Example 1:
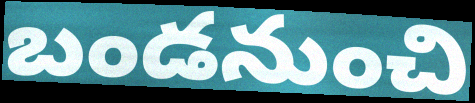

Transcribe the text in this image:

బండనుంచి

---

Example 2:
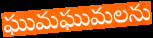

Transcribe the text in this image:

ఘుమఘుమలను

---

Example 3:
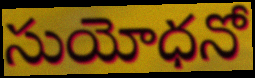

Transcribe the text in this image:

సుయోధనో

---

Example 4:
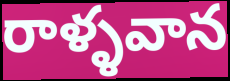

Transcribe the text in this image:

రాళ్ళవాన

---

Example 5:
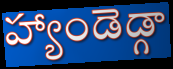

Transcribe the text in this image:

హ్యాండెడ్గా